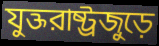
যুক্তরাষ্ট্রজুড়ে